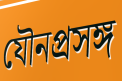
যৌনপ্রসঙ্গ